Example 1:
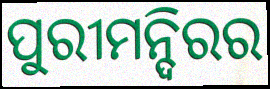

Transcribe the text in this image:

ପୁରୀମନ୍ଦିରର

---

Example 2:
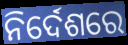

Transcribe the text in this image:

ନିର୍ଦେଶରେ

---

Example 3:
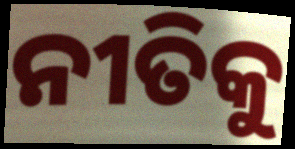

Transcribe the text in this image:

ନୀତିକୁ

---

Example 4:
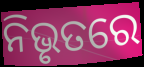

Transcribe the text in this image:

ନିଭୃତରେ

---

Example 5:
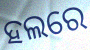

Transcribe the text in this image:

ହଲରେ